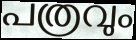
പത്രവും